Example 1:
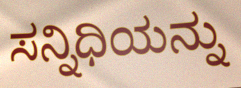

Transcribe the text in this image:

ಸನ್ನಿಧಿಯನ್ನು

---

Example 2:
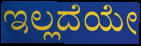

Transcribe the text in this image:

ಇಲ್ಲದೆಯೇ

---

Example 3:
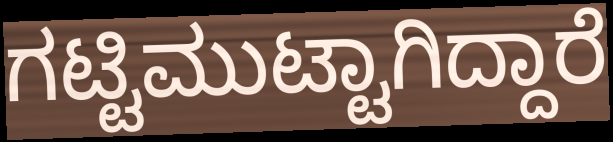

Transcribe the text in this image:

ಗಟ್ಟಿಮುಟ್ಟಾಗಿದ್ದಾರೆ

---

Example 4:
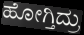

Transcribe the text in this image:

ಹೋಗ್ತಿದ್ರು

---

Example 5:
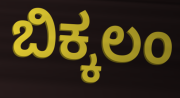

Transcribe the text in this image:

ಬಿಕ್ಕಲಂ